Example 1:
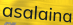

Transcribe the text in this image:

asalaina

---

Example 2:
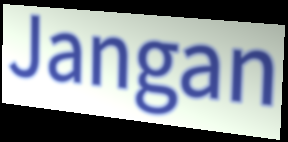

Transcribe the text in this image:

Jangan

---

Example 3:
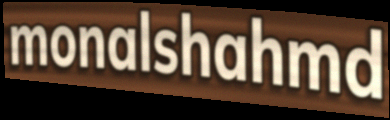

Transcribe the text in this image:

monalshahmd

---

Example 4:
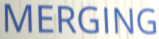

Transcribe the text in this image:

MERGING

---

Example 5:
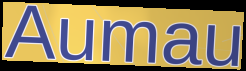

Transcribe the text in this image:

Aumau